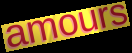
amours